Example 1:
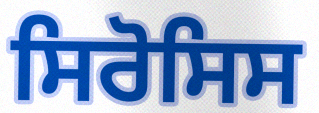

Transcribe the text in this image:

ਸਿਰੋਸਿਸ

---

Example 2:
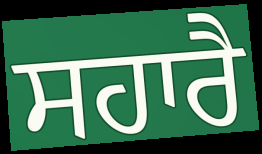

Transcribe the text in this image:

ਸਹਾਰੈ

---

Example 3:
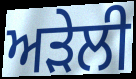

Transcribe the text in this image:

ਅੜੇਲੀ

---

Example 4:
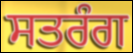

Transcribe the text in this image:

ਸਤਰੰਗ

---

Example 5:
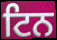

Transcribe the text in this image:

ਟਿਨ